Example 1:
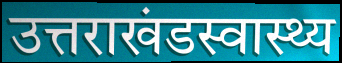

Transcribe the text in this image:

उत्तराखंडस्वास्थ्य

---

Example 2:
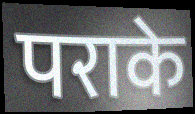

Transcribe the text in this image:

पराके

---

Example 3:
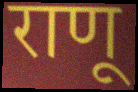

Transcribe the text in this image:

राणू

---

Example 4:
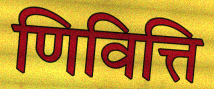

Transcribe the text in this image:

णिवित्ति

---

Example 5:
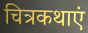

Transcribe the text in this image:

चित्रकथाएं